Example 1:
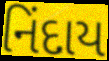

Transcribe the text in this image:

નિંદાય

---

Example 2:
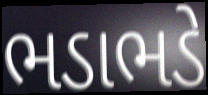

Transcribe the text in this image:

ભડાભડે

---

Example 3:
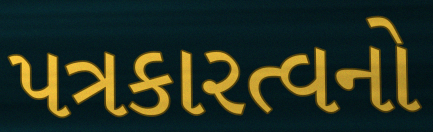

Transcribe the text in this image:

પત્રકારત્વનો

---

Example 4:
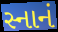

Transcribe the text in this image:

સ્નાનં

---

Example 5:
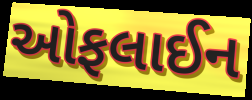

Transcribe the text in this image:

ઓફલાઈન